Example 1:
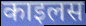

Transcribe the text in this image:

काइलस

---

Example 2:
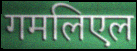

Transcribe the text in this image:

गमलिएल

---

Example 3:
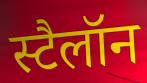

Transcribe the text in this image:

स्टैलॉन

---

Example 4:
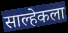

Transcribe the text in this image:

साल्हेकला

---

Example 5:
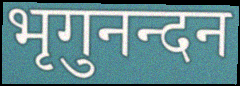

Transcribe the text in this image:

भृगुनन्दन